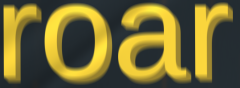
roar